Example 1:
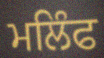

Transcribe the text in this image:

ਮਲਿੰਫ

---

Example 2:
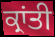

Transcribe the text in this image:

ਕ੍ਰਾਂਤੀ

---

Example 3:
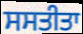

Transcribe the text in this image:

ਸਸਤੀਤਾ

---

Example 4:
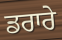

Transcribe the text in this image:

ਡਰਾਰੇ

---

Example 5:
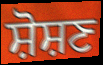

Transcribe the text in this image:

ਸ਼ੋਸ਼ਣ